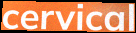
cervical